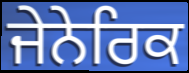
ਜੇਨੇਰਿਕ